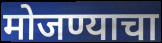
मोजण्याचा